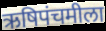
ऋषिपंचमीला